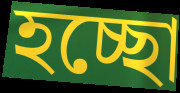
হচ্ছো